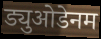
ड्युओडेनम